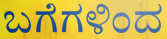
ಬಗೆಗಳಿಂದ